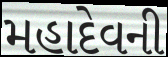
મહાદેવની